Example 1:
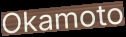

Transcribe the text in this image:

Okamoto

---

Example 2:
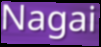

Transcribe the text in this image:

Nagai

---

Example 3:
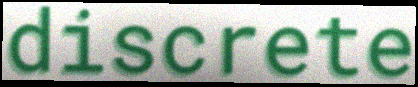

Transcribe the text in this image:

discrete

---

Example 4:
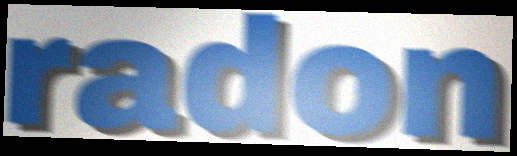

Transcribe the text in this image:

radon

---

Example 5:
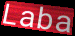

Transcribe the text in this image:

Laba